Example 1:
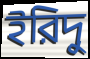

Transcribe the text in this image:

ইরিদু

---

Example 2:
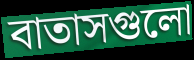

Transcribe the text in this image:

বাতাসগুলো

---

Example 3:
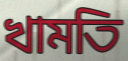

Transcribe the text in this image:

খামতি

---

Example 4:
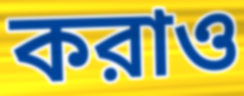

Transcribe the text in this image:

করাও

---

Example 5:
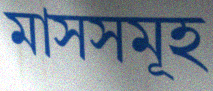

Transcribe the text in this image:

মাসসমূহ